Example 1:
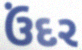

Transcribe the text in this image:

ઉંદર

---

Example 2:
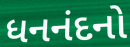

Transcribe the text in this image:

ધનનંદનો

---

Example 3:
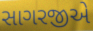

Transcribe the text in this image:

સાગરજીએ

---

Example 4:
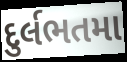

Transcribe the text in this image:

દુર્લભતમા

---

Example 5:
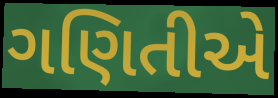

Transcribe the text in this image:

ગણિતીએ